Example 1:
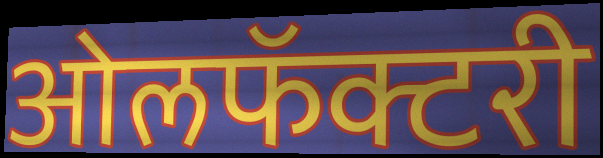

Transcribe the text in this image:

ओलफॅक्टरी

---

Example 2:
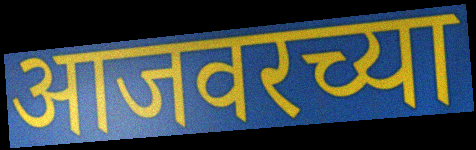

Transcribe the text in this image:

आजवरच्या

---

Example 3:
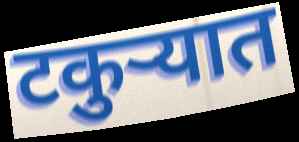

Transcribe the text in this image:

टकुऱ्यात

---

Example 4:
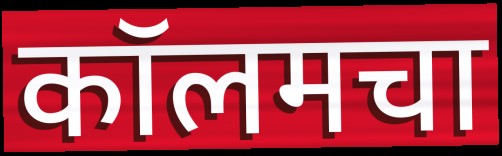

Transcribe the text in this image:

कॉलमचा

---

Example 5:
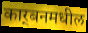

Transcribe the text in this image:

कार्बनमधील